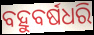
ବହୁବର୍ଷଧରି